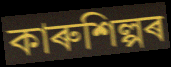
কাৰুশিল্পৰ